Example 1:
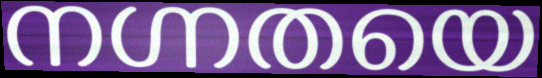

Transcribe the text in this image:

നഗ്നതയെ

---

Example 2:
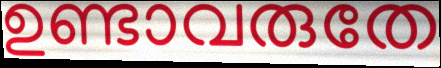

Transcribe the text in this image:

ഉണ്ടാവരുതേ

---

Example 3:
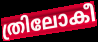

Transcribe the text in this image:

ത്രിലോകീ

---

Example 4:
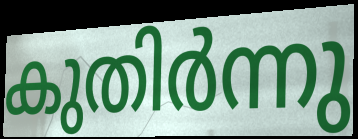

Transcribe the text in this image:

കുതിർന്നു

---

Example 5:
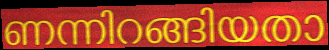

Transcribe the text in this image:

ണന്നിറങ്ങിയതാ